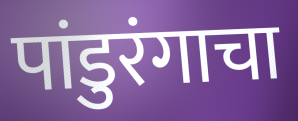
पांडुरंगाचा